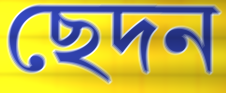
ছেদন